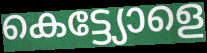
കെട്ട്യോളെ